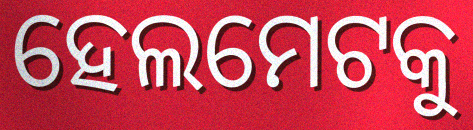
ହେଲମେଟକୁ